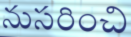
నుసరించి